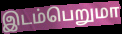
இடம்பெறுமா